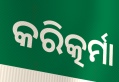
କରିତ୍କର୍ମା